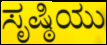
ಸೃಷ್ಠಿಯು